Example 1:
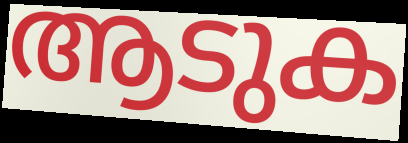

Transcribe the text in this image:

ആടുക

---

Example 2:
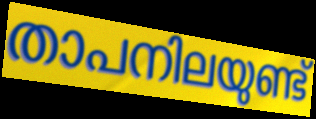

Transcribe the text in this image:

താപനിലയുണ്ട്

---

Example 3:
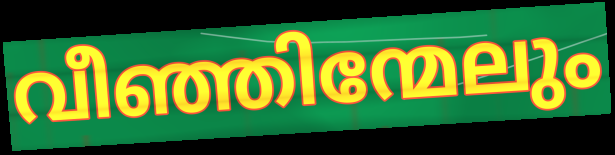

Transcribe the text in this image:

വീഞ്ഞിന്മേലും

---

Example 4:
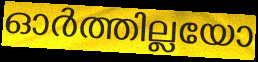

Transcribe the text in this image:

ഓർത്തില്ലയോ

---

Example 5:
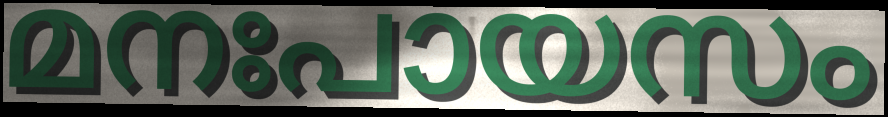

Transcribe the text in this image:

മനഃപായസം